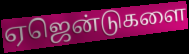
ஏஜென்டுகளை